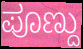
ಪೂಣ್ದು